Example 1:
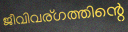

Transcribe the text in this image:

ജീവിവര്ഗത്തിന്റെ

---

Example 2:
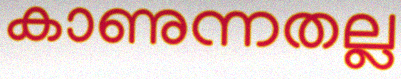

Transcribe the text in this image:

കാണുന്നതല്ല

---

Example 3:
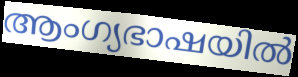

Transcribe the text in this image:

ആംഗ്യഭാഷയിൽ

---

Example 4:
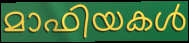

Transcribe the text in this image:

മാഫിയകൾ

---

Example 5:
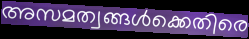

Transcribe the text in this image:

അസമത്വങ്ങൾക്കെതിരെ